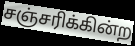
சஞ்சரிக்கின்ற